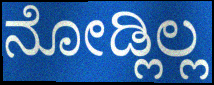
ನೋಡ್ಲಿಲ್ಲ